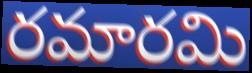
రమారమి